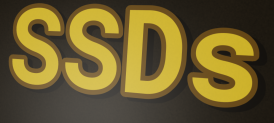
SSDs